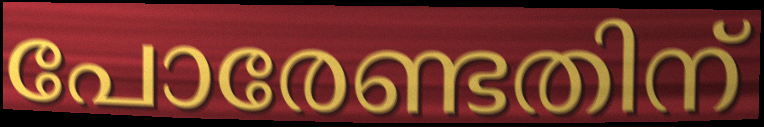
പോരേണ്ടതിന്